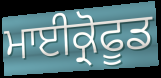
ਮਾਈਕ੍ਰੋਫੂਡ